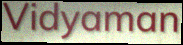
Vidyaman